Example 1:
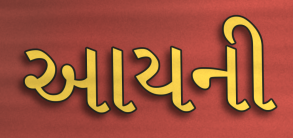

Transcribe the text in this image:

આયની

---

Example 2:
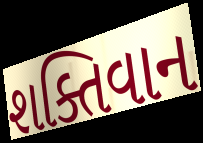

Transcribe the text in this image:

શક્તિવાન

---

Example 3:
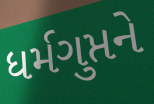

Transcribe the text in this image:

ધર્મગુપ્તને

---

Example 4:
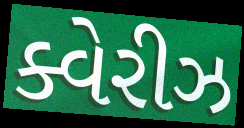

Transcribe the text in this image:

ક્વેરીઝ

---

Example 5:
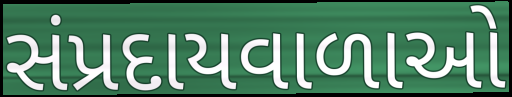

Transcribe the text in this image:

સંપ્રદાયવાળાઓ